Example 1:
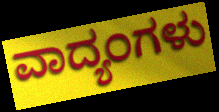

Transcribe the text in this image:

ವಾದ್ಯಂಗಳು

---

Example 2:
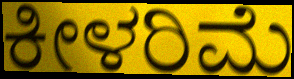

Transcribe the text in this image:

ಕೀಳರಿಮೆ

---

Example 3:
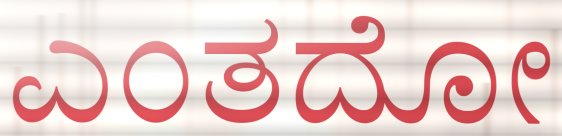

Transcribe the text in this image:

ಎಂತದೋ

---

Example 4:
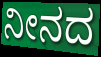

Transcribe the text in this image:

ನೀನದ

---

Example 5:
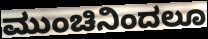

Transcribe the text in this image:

ಮುಂಚಿನಿಂದಲೂ